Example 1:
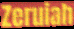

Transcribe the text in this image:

Zeruiah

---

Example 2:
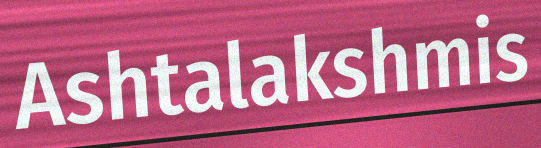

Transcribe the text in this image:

Ashtalakshmis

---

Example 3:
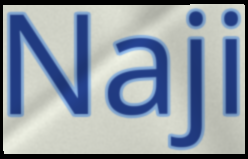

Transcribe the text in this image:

Naji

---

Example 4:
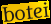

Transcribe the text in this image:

botei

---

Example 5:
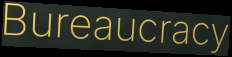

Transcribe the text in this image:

Bureaucracy